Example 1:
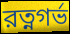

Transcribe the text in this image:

রত্নগর্ভ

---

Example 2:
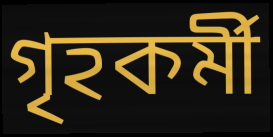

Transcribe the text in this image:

গৃহকর্মী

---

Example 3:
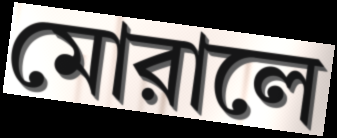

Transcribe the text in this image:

মোরালে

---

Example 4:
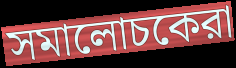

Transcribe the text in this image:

সমালোচকেরা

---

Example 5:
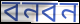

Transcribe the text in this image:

বনবন